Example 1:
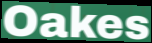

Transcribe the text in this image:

Oakes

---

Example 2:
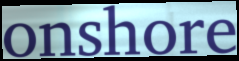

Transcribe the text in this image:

onshore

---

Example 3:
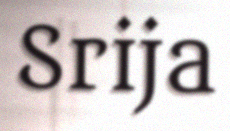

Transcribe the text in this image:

Srija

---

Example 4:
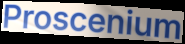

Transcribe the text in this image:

Proscenium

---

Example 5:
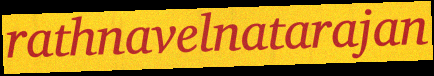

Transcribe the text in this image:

rathnavelnatarajan